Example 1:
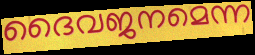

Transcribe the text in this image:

ദൈവജനമെന്ന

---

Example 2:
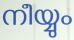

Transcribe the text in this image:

നീയ്യും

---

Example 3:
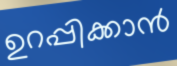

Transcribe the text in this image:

ഉറപ്പിക്കാൻ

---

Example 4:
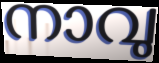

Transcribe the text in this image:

നാവു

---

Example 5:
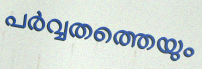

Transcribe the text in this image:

പർവ്വതത്തെയും